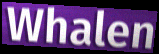
Whalen